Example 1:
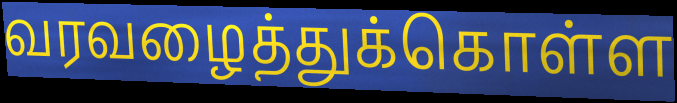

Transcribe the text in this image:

வரவழைத்துக்கொள்ள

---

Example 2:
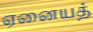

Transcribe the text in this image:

ஏனையத்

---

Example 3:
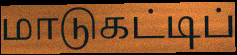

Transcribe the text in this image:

மாடுகட்டிப்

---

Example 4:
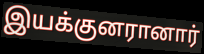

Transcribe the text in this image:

இயக்குனரானார்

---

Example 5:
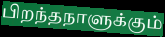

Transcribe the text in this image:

பிறந்தநாளுக்கும்